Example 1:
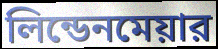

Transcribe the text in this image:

লিন্ডেনমেয়ার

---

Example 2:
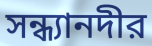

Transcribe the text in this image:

সন্ধ্যানদীর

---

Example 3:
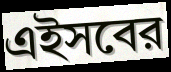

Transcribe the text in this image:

এইসবের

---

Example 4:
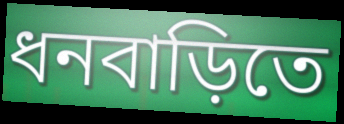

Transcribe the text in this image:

ধনবাড়িতে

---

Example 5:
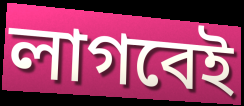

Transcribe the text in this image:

লাগবেই